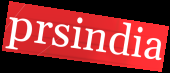
prsindia